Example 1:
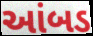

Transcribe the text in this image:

આંબડ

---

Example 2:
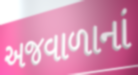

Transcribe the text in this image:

અજવાળાનાં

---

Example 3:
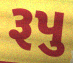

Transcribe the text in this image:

રૂપુ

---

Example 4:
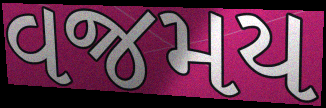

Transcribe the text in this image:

વજ્રમય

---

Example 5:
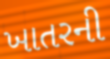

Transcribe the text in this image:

ખાતરની